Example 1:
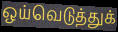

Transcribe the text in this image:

ஒய்வெடுத்துக்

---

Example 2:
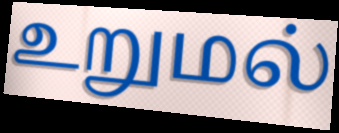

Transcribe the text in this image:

உறுமல்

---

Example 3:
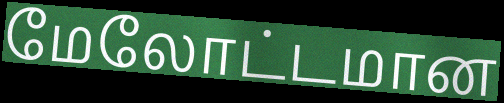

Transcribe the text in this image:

மேலோட்டமான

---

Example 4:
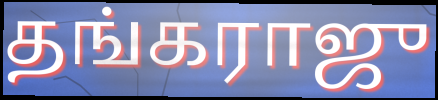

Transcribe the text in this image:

தங்கராஜு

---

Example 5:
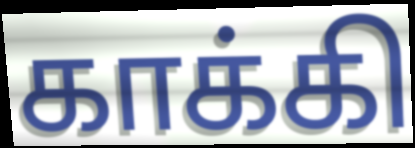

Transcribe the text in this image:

காக்கி